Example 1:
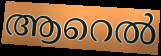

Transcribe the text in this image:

ആറെൽ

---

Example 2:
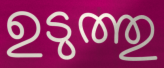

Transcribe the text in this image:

ഉടുത്തു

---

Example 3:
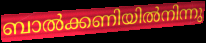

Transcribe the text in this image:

ബാൽക്കണിയിൽനിന്നു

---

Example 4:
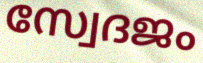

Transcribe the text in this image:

സ്വേദജം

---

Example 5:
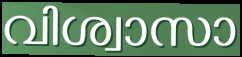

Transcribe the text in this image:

വിശ്വാസാ